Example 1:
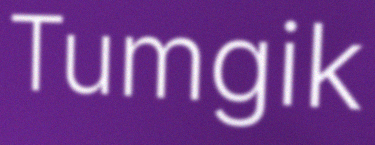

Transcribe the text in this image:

Tumgik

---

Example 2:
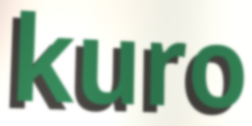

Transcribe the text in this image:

kuro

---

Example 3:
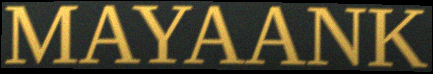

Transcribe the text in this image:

MAYAANK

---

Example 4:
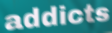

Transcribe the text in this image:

addicts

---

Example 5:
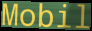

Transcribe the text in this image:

Mobil